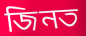
জিনত